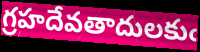
గ్రహదేవతాదులకుఁ